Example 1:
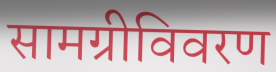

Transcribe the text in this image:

सामग्रीविवरण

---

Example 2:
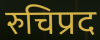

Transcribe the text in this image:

रुचिप्रद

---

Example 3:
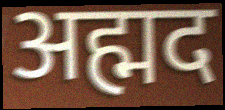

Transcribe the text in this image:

अह्मद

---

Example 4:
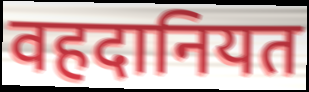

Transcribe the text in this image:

वहदानियत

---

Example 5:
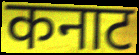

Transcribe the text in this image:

कनाट